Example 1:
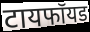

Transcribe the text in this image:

टायफॉयड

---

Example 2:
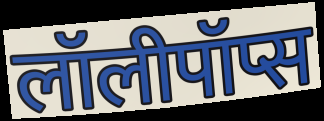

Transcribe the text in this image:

लॉलीपॉप्स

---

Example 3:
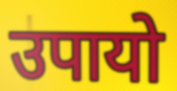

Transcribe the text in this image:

उपायो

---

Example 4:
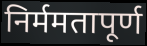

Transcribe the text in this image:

निर्ममतापूर्ण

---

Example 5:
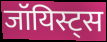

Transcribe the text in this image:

जॉयिस्ट्स